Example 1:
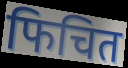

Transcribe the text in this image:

फिचित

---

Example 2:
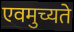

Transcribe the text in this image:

एवमुच्यते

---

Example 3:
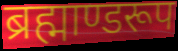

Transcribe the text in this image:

ब्रह्माण्डरूप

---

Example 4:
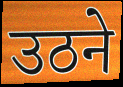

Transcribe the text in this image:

उठने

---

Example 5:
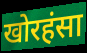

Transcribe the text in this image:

खोरहंसा